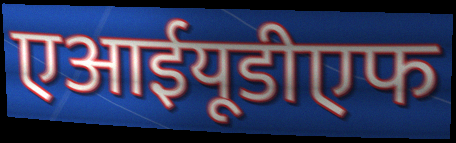
एआईयूडीएफ